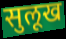
सुलूख